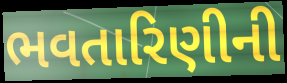
ભવતારિણીની